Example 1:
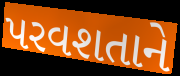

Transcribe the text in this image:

પરવશતાને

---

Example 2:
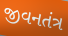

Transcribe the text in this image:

જીવનતંત્ર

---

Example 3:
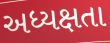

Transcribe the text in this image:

અધ્યક્ષતા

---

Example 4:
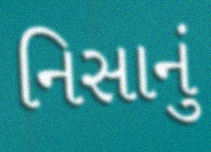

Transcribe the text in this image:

નિસાનું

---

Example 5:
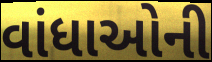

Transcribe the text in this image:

વાંધાઓની